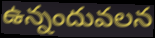
ఉన్నందువలన